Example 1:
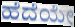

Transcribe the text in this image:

ಹೆದೆಯೇ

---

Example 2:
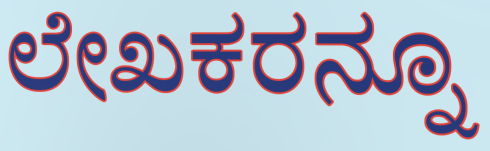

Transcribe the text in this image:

ಲೇಖಕರನ್ನೂ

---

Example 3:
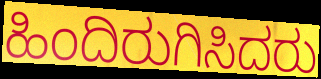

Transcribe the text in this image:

ಹಿಂದಿರುಗಿಸಿದರು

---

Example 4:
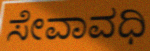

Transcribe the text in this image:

ಸೇವಾವಧಿ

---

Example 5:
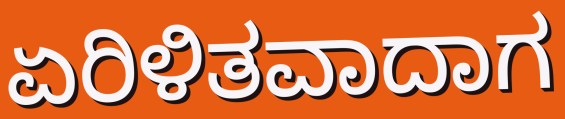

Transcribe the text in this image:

ಏರಿಳಿತವಾದಾಗ